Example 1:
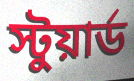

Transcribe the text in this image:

স্টুয়ার্ড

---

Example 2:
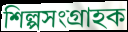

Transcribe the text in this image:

শিল্পসংগ্রাহক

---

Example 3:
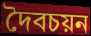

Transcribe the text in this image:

দৈবচয়ন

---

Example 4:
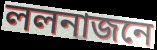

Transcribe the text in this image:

ললনাজনে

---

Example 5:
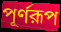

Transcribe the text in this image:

পূর্ণরূপ